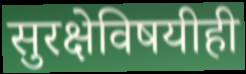
सुरक्षेविषयीही